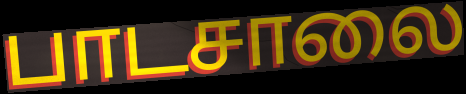
பாடசாலை